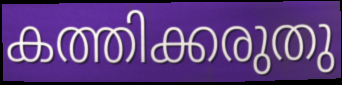
കത്തിക്കരുതു